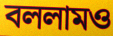
বললামও